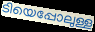
ടിയെപ്പോലുള്ള